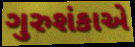
ગુરુશંકાએ